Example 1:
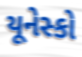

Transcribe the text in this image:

યૂનેસ્કો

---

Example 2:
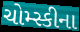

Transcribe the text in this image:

ચોમ્સ્કીના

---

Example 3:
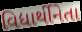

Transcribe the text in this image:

વિદ્યાર્થીનેતા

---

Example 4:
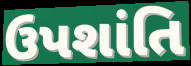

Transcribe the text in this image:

ઉપશાંતિ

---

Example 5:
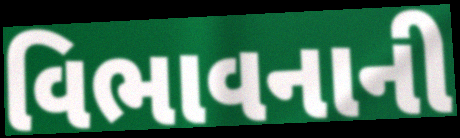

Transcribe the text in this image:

વિભાવનાની